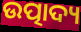
ଉତ୍ପାଦ୍ୟ